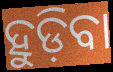
ହୁଡ଼ିବା